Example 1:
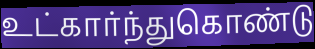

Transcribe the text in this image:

உட்கார்ந்துகொண்டு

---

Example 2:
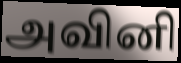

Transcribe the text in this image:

அவினி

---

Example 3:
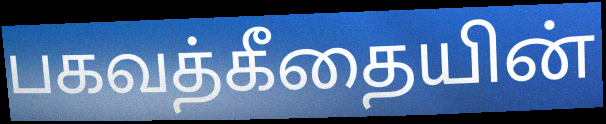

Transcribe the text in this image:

பகவத்கீதையின்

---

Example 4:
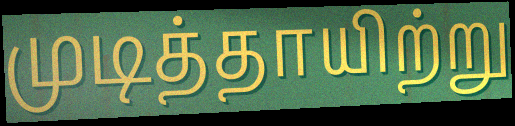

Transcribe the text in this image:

முடித்தாயிற்று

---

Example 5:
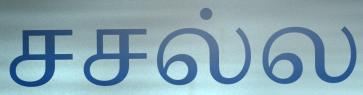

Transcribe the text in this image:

சசல்ல